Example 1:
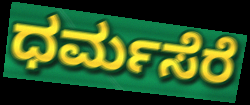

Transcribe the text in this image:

ಧರ್ಮಸೆರೆ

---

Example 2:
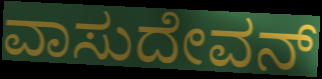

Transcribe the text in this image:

ವಾಸುದೇವನ್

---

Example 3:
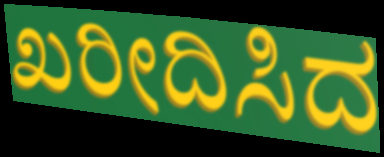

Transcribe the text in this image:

ಖರೀದಿಸಿದ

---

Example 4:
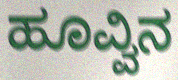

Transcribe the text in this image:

ಹೂವ್ವಿನ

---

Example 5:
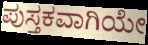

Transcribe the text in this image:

ಪುಸ್ತಕವಾಗಿಯೇ